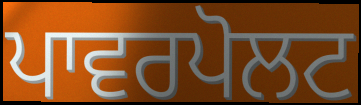
ਪਾਵਰਪੋਲਟ